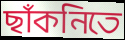
ছাঁকনিতে